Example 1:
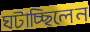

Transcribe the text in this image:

ঘটাচ্ছিলেন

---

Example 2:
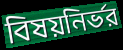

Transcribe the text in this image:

বিষয়নির্ভর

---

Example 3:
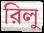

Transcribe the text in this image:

রিলু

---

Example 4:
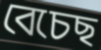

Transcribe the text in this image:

বেচেছ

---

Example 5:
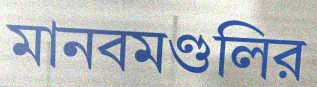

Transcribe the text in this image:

মানবমণ্ডলির